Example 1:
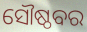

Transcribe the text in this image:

ସୌଷ୍ଠବର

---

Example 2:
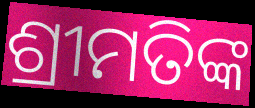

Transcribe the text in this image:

ଶ୍ରୀମତିଙ୍କ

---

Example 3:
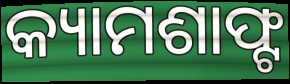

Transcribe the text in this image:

କ୍ୟାମଶାଫ୍ଟ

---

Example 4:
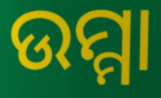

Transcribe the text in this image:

ଉମ୍ମା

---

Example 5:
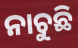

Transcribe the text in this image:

ନାଚୁଛି